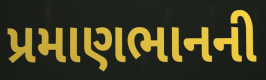
પ્રમાણભાનની